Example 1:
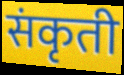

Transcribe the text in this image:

संकृती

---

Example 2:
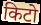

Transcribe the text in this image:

किटो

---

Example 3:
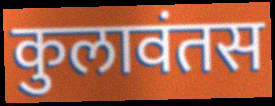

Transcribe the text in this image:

कुलावंतस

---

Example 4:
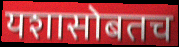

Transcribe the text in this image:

यशासोबतच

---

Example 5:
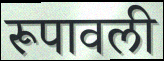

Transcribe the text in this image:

रूपावली